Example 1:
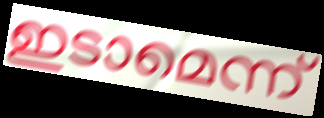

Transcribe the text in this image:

ഇടാമെന്ന്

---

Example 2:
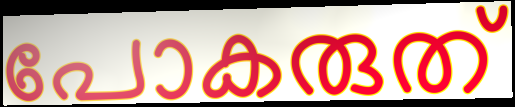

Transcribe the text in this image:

പോകരുത്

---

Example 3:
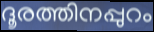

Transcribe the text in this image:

ദൂരത്തിനപ്പുറം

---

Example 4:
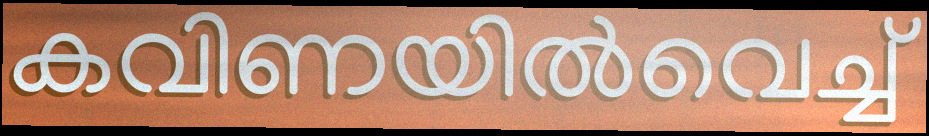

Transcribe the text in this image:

കവിണയിൽവെച്ച്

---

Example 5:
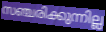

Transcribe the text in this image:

സഞ്ചരിക്കുന്നില്ല